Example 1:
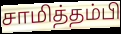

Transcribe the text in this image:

சாமித்தம்பி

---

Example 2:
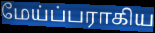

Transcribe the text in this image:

மேய்ப்பராகிய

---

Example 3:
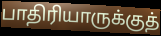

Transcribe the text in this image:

பாதிரியாருக்குத்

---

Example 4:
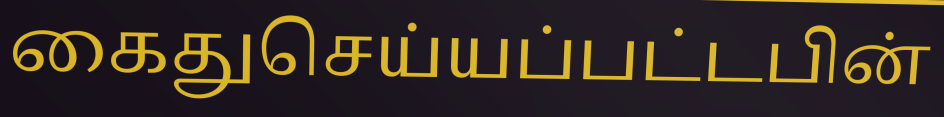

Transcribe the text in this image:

கைதுசெய்யப்பட்டபின்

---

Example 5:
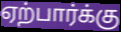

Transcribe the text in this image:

ஏற்பார்க்கு